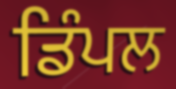
ਡਿੰਪਲ